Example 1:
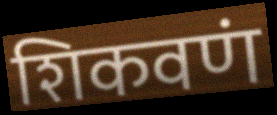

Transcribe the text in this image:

शिकवणं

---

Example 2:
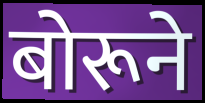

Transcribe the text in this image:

बोरूने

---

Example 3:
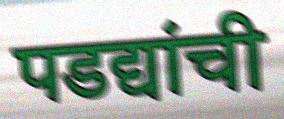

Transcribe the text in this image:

पडद्यांची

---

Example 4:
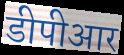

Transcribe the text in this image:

डीपीआर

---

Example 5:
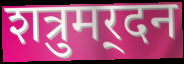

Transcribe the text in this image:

शत्रुमर्दन